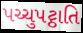
પચ્ચુપટ્ઠાતિ